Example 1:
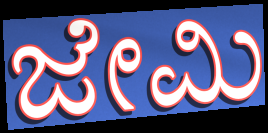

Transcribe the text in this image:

ಜೇಮಿ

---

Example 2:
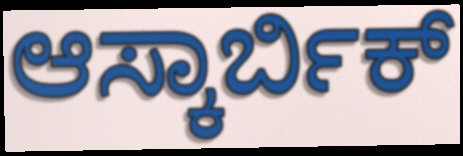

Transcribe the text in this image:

ಆಸ್ಕಾರ್ಬಿಕ್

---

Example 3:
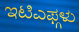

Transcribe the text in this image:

ಇಟಿಎಫ್ಗಳು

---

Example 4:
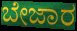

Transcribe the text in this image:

ಬೇಜಾರ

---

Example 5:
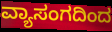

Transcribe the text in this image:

ವ್ಯಾಸಂಗದಿಂದ